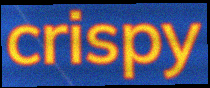
crispy